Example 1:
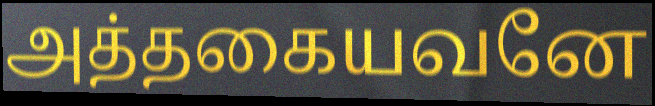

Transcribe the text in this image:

அத்தகையவனே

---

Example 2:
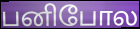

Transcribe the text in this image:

பனிபோல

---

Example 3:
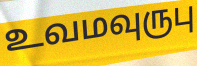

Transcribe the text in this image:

உவமவுருபு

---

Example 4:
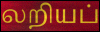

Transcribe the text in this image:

லறியப்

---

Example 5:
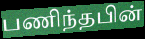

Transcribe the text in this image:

பணிந்தபின்